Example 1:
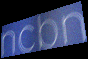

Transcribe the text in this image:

ncbn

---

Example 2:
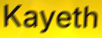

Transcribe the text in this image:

Kayeth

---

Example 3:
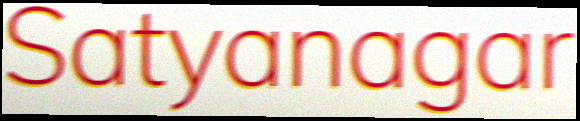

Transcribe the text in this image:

Satyanagar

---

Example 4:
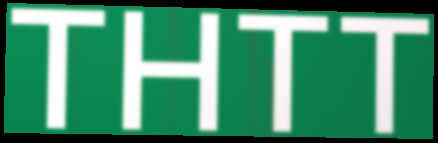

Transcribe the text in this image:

THTT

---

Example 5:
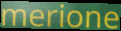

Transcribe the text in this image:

merione